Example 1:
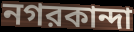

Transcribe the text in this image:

নগরকান্দা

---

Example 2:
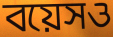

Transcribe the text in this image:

বয়েসও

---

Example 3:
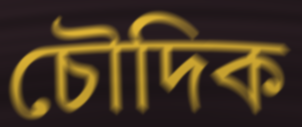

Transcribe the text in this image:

চৌদিক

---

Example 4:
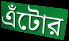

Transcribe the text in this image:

এঁটোর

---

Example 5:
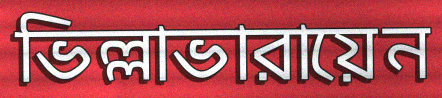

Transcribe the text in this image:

ভিল্লাভারায়েন